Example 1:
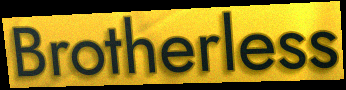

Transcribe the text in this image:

Brotherless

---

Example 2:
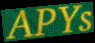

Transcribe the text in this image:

APYs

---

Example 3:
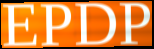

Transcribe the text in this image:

EPDP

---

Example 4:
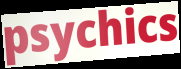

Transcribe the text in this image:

psychics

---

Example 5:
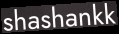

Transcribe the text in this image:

shashankk